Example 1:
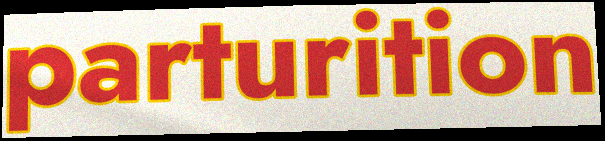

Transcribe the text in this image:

parturition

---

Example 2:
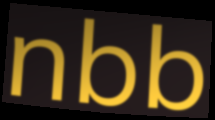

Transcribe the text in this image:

nbb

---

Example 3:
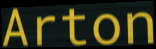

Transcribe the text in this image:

Arton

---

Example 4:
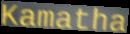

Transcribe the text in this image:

Kamatha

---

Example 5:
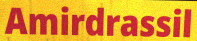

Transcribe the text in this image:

Amirdrassil